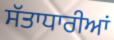
ਸੱਤਾਧਾਰੀਆਂ